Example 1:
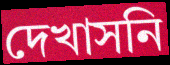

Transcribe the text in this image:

দেখাসনি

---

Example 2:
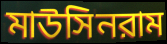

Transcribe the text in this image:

মাউসিনরাম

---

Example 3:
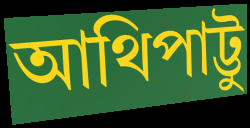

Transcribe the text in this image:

আথিপাট্টু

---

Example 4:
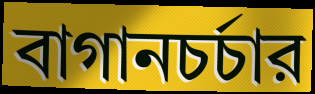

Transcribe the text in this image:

বাগানচর্চার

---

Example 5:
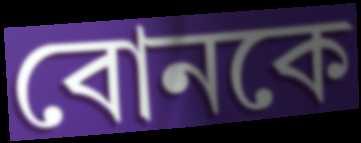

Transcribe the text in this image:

বোনকে